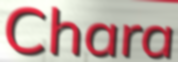
Chara